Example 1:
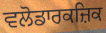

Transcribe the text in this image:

ਵਲੋਡਾਰਕਜ਼ਿਕ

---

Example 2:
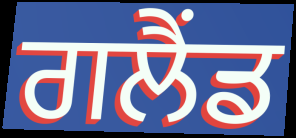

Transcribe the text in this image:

ਗਲੈਂਡ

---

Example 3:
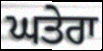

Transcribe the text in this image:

ਘਤੇਰਾ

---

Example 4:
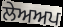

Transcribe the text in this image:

ਲੇਅਅਪ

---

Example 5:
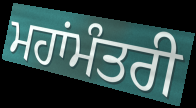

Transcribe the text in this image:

ਮਹਾਂਮੰਤਰੀ